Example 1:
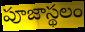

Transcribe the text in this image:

పూజాస్థలం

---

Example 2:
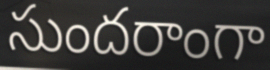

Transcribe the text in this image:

సుందరాంగా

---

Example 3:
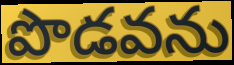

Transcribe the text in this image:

పొడవను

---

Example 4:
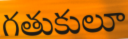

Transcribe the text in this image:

గతుకులూ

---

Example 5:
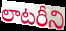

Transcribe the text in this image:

లాటరీని